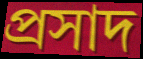
প্রসাদ